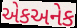
એકઅનેક